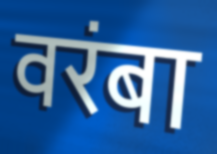
वरंबा